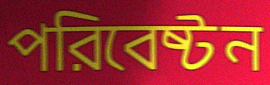
পরিবেষ্টন